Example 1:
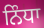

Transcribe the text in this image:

ਨਿੰਧਾ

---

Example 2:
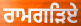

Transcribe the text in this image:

ਰਾਮਗੜਿਏ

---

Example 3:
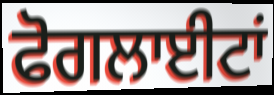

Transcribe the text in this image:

ਫੋਗਲਾਈਟਾਂ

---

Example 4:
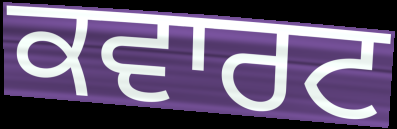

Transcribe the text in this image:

ਕਵਾਰਟ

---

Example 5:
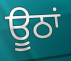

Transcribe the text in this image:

ਊਠਾਂ